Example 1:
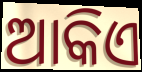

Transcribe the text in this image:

ଆକିଏ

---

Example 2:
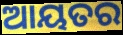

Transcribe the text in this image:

ଆୟତର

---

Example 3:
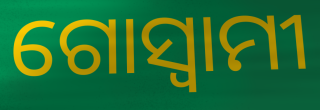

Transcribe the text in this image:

ଗୋସ୍ଵାମୀ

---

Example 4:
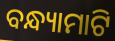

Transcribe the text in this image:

ବନ୍ଧ୍ୟାମାଟି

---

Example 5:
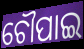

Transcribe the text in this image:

ଚୌପାଇ